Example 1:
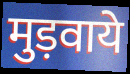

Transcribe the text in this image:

मुड़वाये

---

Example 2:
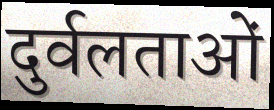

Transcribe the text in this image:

दुर्वलताओं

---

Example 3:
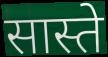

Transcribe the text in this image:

सास्ते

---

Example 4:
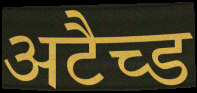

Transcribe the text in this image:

अटैच्ड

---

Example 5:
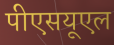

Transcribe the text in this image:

पीएसयूएल